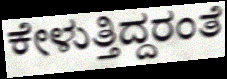
ಕೇಳುತ್ತಿದ್ದರಂತೆ